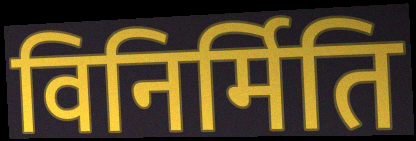
विनिर्मिति